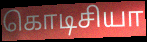
கொடிசியா